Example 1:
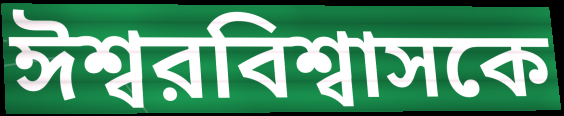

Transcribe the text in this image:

ঈশ্বরবিশ্বাসকে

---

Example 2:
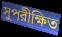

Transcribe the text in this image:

সুপরীক্ষিত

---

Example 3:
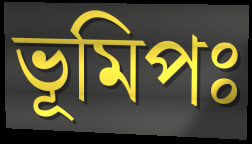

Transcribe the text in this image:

ভূমিপঃ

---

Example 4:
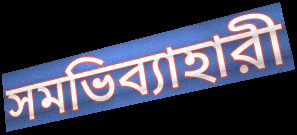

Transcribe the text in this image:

সমভিব্যাহারী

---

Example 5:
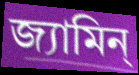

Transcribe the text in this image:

জ্যামিন্